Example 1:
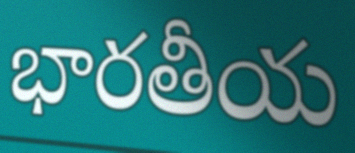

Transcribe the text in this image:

భారతీయ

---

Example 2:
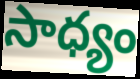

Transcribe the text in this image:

సాధ్యం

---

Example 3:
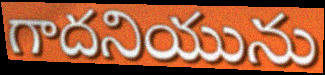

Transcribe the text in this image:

గాదనియును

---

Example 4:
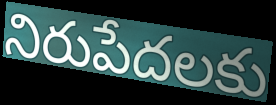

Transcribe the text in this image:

నిరుపేదలకు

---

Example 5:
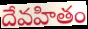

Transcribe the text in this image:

దేవహితం